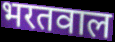
भरतवाल